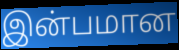
இன்பமான